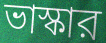
ভাস্কার